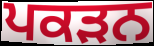
ਪਕੜਨ